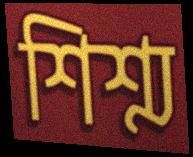
শিশ্ম